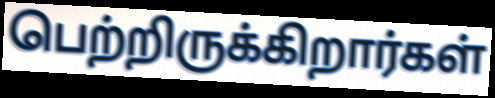
பெற்றிருக்கிறார்கள்